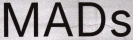
MADs